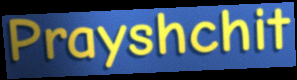
Prayshchit